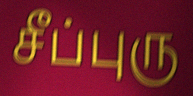
சீப்புரு